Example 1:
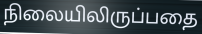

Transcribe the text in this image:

நிலையிலிருப்பதை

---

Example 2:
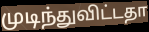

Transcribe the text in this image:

முடிந்துவிட்டதா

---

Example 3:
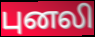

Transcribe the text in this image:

புனலி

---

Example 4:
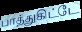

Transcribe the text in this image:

பாத்துகிட்டே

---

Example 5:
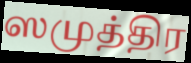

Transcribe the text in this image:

ஸமுத்திர